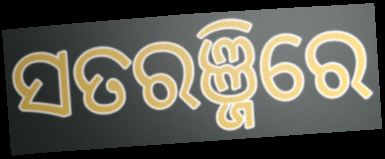
ସତରଞ୍ଜିରେ